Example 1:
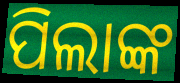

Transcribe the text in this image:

ପିଲାଙ୍କ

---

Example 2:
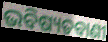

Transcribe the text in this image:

ଭବିଷ୍ୟତବାଣୀ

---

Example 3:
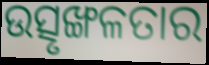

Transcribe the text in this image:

ଉତ୍ସୃଙ୍ଖଳତାର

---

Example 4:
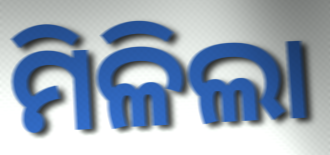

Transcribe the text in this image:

ମିଳିଲା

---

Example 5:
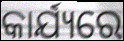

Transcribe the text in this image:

କାର୍ଯ୍ୟରେ